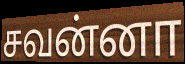
சவன்னா